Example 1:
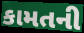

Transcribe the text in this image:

કામતની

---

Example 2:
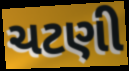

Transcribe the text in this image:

ચટણી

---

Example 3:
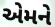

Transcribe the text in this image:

એમને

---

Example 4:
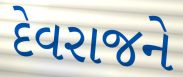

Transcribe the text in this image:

દેવરાજને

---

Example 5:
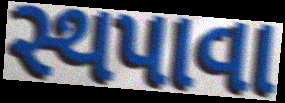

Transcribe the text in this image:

સ્થપાવા